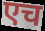
एच